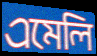
এমেলি